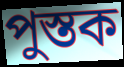
পুস্তক